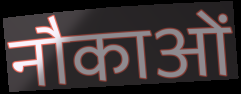
नौकाओं